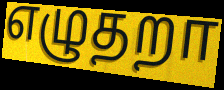
எழுதறா